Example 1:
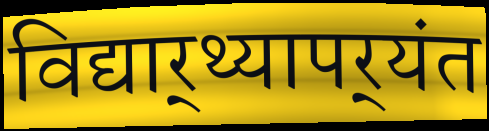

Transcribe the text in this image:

विद्यार्थ्यापर्यंत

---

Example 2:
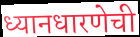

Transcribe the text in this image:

ध्यानधारणेची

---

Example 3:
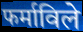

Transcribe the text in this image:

फर्माविले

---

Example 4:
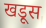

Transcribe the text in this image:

खडूस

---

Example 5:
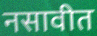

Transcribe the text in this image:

नसावीत